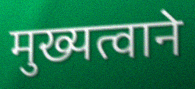
मुख्यत्वाने